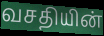
வசதியின்